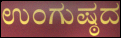
ಉಂಗುಷ್ಠದ